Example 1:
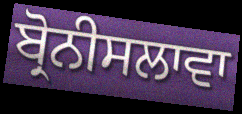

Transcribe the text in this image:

ਬ੍ਰੋਨੀਸਲਾਵਾ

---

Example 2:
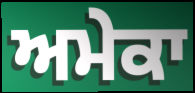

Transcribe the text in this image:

ਅਮੇਕਾ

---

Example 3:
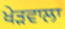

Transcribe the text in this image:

ਖੇੜਵਾਲਾ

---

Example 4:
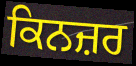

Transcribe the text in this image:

ਕਿਨਜ਼ਰ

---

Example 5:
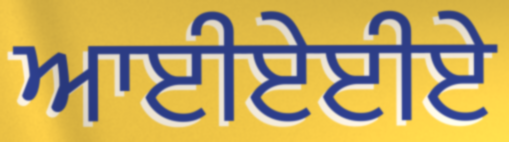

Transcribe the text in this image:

ਆਈਏਈਏ